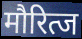
मौरित्ज